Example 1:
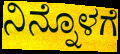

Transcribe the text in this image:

ನಿನ್ನೊಳಗೆ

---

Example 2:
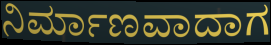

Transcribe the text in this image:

ನಿರ್ಮಾಣವಾದಾಗ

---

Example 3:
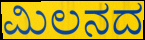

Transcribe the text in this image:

ಮಿಲನದ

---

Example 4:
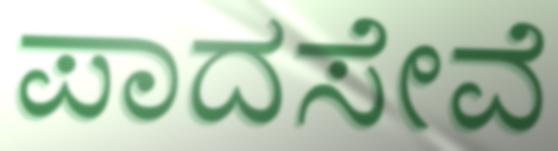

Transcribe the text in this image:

ಪಾದಸೇವೆ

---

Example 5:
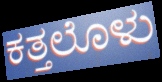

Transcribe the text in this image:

ಕತ್ತಲೊಳು